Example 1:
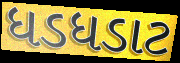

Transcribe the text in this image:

ધડધડાટ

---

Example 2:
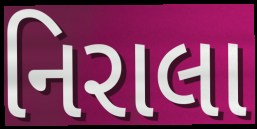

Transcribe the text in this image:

નિરાલા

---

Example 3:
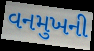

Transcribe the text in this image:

વનમુખની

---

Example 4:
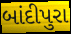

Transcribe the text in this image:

બાંદીપુરા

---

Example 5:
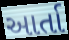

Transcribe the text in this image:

આર્તા